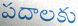
పదాలకు